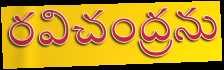
రవిచంద్రను